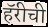
हॅरीची